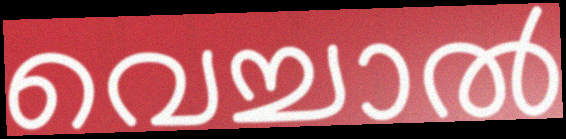
വെച്ചാൽ